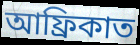
আফ্ৰিকাত